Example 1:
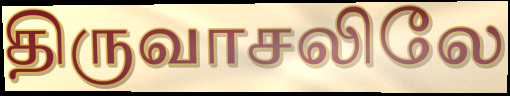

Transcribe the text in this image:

திருவாசலிலே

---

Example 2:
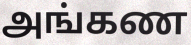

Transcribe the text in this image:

அங்கண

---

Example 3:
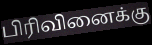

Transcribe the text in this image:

பிரிவினைக்கு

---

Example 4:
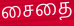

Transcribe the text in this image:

சைதை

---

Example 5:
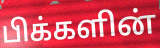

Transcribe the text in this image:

பிக்களின்